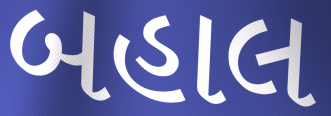
બહાલ